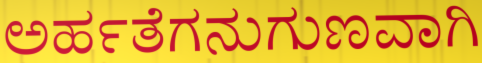
ಅರ್ಹತೆಗನುಗುಣವಾಗಿ